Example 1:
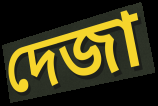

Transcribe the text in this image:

দেজা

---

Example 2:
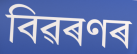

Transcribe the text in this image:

বিৱৰণৰ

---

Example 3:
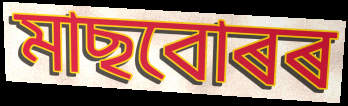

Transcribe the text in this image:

মাছবোৰৰ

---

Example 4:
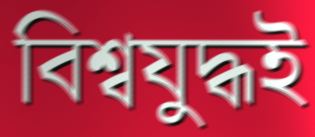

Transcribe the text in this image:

বিশ্বযুদ্ধই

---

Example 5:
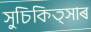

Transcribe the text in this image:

সুচিকিত্সাৰ